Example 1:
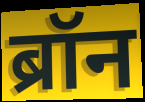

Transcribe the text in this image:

ब्रॉन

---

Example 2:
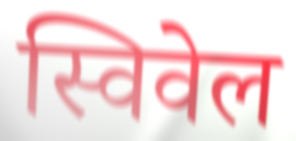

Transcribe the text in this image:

स्विवेल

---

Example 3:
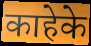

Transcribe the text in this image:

काहेके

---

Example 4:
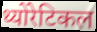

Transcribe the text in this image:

थ्योरेटिकल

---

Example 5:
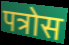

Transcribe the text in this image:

पत्रोस